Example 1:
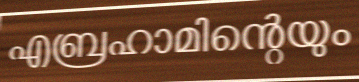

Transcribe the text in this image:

എബ്രഹാമിന്റെയും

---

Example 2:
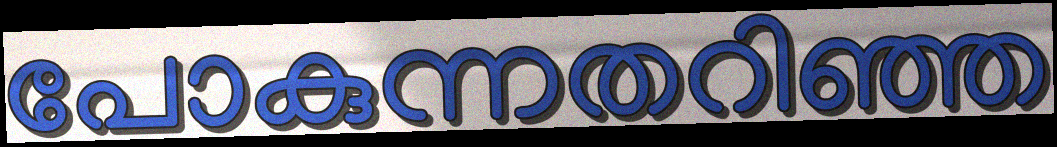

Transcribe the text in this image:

പോകുന്നതറിഞ്ഞ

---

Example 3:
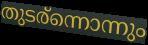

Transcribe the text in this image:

തുടര്ന്നൊന്നും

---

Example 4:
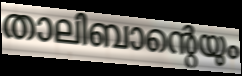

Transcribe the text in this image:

താലിബാന്റെയും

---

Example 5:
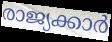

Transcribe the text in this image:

രാജ്യക്കാർ